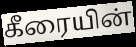
கீரையின்